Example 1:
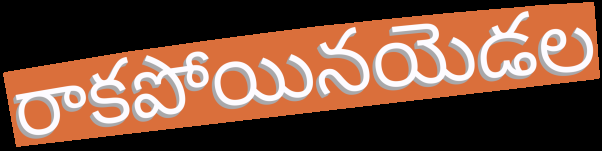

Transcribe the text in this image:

రాకపోయినయెడల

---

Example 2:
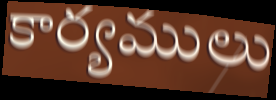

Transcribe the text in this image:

కార్యములు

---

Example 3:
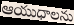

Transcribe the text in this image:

ఆయుధాలను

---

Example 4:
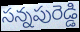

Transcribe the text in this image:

సన్నపురెడ్డి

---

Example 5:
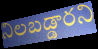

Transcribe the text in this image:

నిలబడ్డారని